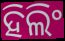
ହିଲିଂ